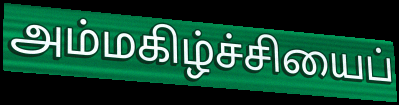
அம்மகிழ்ச்சியைப்